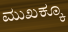
ಮುಖಕ್ಕೂ